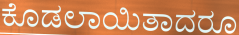
ಕೊಡಲಾಯಿತಾದರೂ